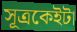
সূত্ৰকেইটা